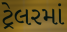
ટ્રેલરમાં